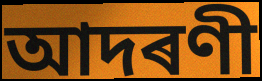
আদৰণী